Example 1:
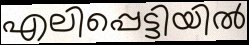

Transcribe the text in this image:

എലിപ്പെട്ടിയിൽ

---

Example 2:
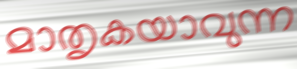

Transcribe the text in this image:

മാതൃകയാവുന്ന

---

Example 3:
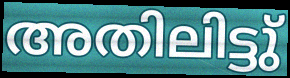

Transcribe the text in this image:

അതിലിട്ടു്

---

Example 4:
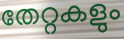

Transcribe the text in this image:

തേറ്റകളും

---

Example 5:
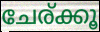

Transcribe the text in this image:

ചേര്ക്കൂ